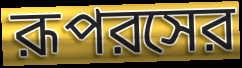
রূপরসের